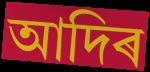
আদিৰ